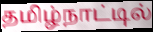
தமிழ்நாட்டில்